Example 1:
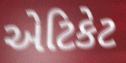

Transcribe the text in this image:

એટિકેટ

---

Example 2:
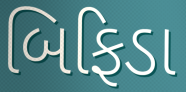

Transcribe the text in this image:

બિફિડા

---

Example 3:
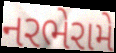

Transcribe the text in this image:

નરભેરામે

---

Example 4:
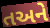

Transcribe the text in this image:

તઅને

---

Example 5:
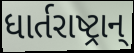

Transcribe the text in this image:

ધાર્તરાષ્ટ્રાન્